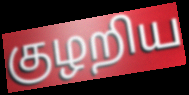
குழறிய